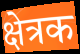
क्षेत्रक